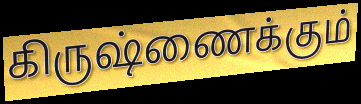
கிருஷ்ணைக்கும்